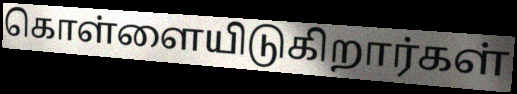
கொள்ளையிடுகிறார்கள்